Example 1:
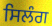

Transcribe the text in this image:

ਸਿਲੰਗ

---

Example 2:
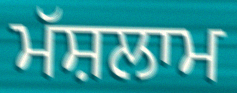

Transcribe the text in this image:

ਮੱਸ਼ਲਾਮ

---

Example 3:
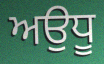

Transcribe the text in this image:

ਅਉਧੂ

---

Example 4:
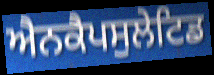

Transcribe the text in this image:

ਐਨਕੈਪਸੁਲੇਟਿਡ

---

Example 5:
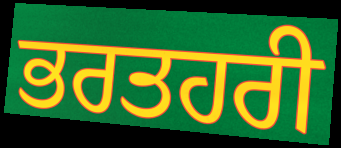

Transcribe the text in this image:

ਭਰਤਹਰੀ